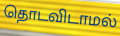
தொடவிடாமல்